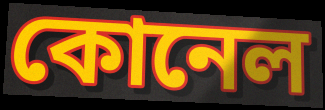
কোনেল